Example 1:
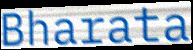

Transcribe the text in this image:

Bharata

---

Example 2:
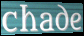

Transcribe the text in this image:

chade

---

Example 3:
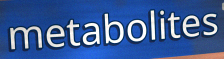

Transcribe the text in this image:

metabolites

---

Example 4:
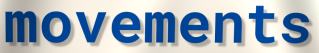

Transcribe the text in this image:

movements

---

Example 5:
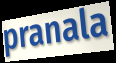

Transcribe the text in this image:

pranala